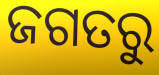
ଜଗତରୁ